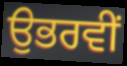
ਉਭਰਵੀਂ